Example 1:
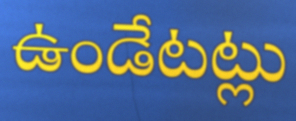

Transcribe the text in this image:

ఉండేటట్లు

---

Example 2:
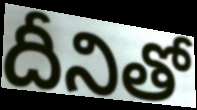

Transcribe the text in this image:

దీనితో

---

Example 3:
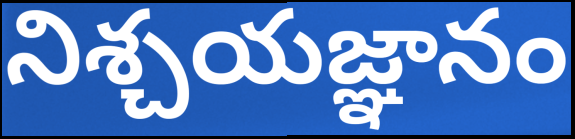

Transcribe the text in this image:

నిశ్చయజ్ఞానం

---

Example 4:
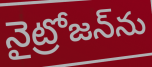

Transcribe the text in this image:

నైట్రోజన్‌ను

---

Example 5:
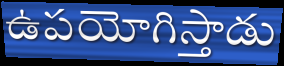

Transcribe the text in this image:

ఉపయోగిస్తాడు